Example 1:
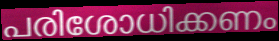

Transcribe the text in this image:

പരിശോധിക്കണം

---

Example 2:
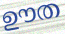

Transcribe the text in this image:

ഊത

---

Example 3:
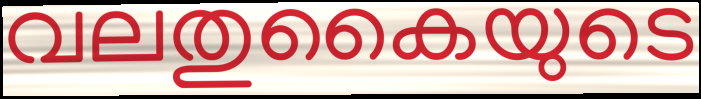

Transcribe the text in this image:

വലതുകൈയുടെ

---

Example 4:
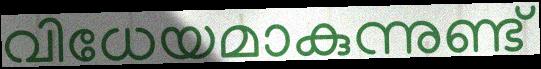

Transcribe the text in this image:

വിധേയമാകുന്നുണ്ട്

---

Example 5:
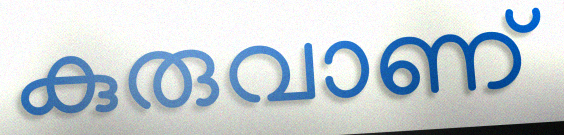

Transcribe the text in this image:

കുരുവാണ്